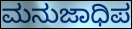
ಮನುಜಾಧಿಪ